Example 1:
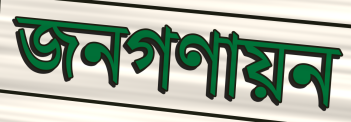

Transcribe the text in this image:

জনগণায়ন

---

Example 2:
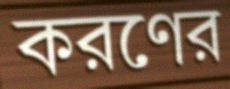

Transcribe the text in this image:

করণের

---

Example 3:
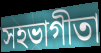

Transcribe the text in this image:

সহভাগীতা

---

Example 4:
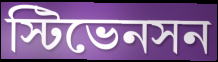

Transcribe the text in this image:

স্টিভেনসন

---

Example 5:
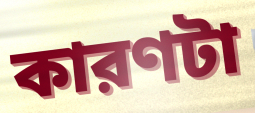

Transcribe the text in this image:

কারণটা